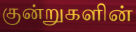
குன்றுகளின்